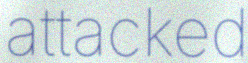
attacked